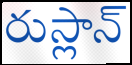
రుస్లాన్